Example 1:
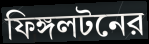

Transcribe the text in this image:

ফিঙ্গলটনের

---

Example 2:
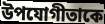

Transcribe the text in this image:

উপযোগীতাকে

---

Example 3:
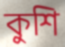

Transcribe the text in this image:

কুশি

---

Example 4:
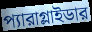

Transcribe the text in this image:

প্যারাগ্লাইডার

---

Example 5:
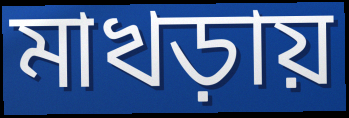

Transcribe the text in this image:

মাখড়ায়